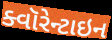
ક્વૉરેન્ટાઇન